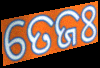
ତେଜଃ